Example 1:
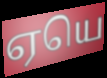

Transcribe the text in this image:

ஏயெ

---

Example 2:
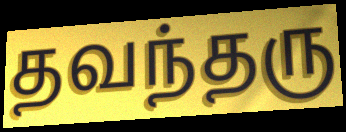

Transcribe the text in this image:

தவந்தரு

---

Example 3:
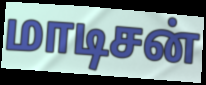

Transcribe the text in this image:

மாடிசன்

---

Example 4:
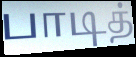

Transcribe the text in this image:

பாடித்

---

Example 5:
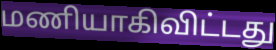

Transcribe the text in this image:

மணியாகிவிட்டது